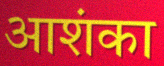
आशंका